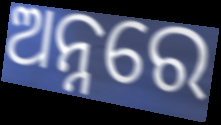
ଅନ୍ନରେ